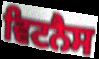
ਵਿਟਨੈਸ